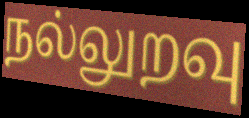
நல்லுறவு